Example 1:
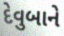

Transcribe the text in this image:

દેવુબાને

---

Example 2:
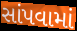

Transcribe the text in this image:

સાંપવામાં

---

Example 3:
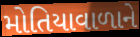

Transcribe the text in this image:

મોતિયાવાળાને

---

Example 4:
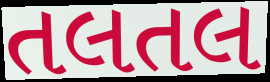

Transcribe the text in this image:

તલતલ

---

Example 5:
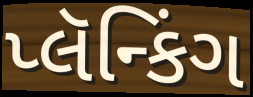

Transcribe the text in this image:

પ્લૅન્કિંગ